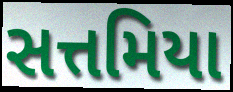
સત્તમિયા